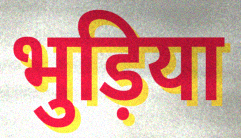
भुड़िया